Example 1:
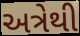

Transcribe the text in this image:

અત્રેથી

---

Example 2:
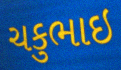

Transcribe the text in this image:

ચકુભાઇ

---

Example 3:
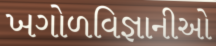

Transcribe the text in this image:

ખગોળવિજ્ઞાનીઓ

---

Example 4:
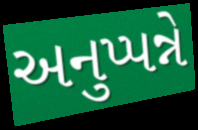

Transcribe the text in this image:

અનુપ્પન્ને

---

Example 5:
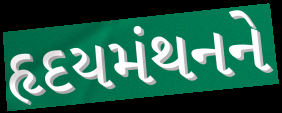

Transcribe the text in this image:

હૃદયમંથનને